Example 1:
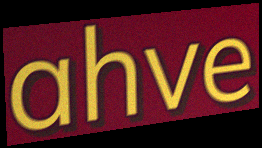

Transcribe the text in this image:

ahve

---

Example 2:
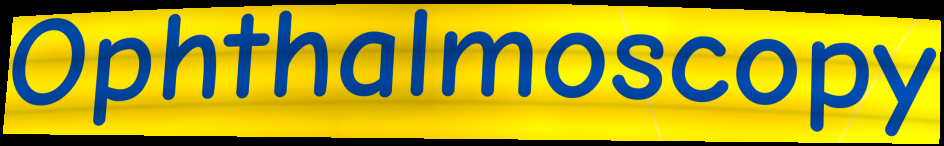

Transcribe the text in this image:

Ophthalmoscopy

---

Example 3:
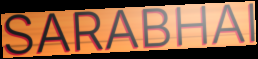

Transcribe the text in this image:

SARABHAI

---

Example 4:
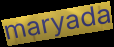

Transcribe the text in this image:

maryada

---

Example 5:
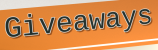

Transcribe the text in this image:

Giveaways